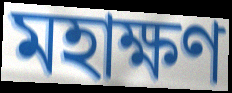
মহাক্ষণ